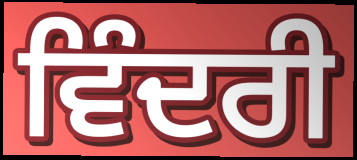
ਵਿੰਦਰੀ